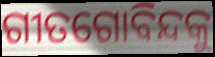
ଗୀତଗୋବିନ୍ଦକୁ